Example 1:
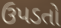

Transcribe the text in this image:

ઉપડતો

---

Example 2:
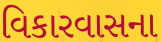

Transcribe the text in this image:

વિકારવાસના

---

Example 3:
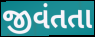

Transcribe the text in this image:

જીવંતતા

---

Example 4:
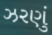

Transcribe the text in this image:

ઝરણું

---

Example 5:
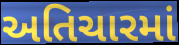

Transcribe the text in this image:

અતિચારમાં